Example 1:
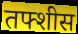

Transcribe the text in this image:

तफ्शीस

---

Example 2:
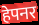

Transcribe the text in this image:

हेपनर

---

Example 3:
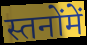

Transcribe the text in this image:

स्तनोंमें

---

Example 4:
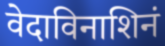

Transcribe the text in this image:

वेदाविनाशिनं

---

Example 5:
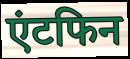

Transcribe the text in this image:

एंटफिन